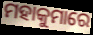
ମହାକୁମାରେ